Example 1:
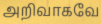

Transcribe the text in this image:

அறிவாகவே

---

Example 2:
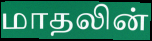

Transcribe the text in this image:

மாதலின்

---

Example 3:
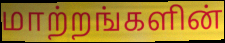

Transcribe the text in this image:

மாற்றங்களின்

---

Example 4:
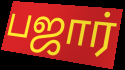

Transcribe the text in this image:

பஜார்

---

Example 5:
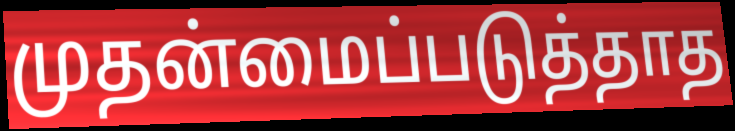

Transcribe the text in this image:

முதன்மைப்படுத்தாத